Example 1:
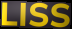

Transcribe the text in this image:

LISS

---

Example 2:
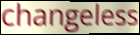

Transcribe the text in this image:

changeless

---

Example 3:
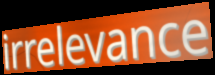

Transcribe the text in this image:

irrelevance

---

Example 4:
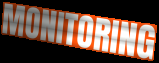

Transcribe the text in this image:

MONITORING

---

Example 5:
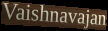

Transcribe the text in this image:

Vaishnavajan